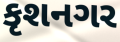
કૃશનગર